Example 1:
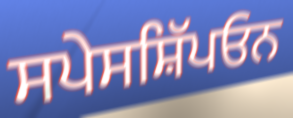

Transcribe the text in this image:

ਸਪੇਸਸ਼ਿੱਪਓਨ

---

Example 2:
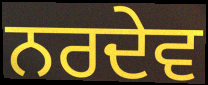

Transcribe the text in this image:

ਨਰਦੇਵ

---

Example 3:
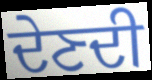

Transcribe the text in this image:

ਦੇਣਦੀ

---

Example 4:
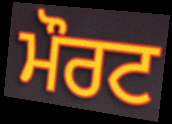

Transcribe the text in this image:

ਮੌਰਟ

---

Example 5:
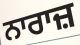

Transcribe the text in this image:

ਨਾਰਾਜ਼